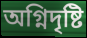
অগ্নিদৃষ্টি